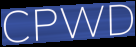
CPWD